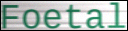
Foetal